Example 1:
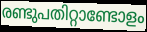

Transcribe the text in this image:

രണ്ടുപതിറ്റാണ്ടോളം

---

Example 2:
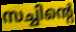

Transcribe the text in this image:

സച്ചിന്റെ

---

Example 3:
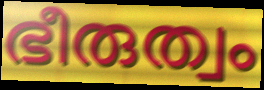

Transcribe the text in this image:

ഭീരുത്വം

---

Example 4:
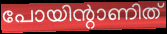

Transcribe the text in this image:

പോയിന്റാണിത്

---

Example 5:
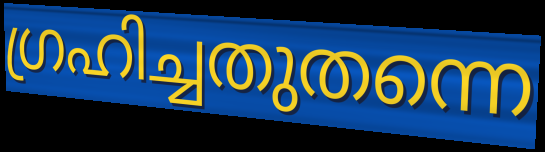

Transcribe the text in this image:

ഗ്രഹിച്ചതുതന്നെ